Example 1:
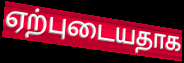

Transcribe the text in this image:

ஏற்புடையதாக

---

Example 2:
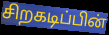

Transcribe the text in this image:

சிறகடிப்பின்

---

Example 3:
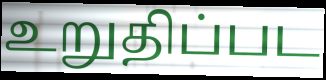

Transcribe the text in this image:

உறுதிப்பட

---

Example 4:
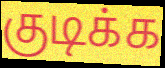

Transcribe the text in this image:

குடிக்க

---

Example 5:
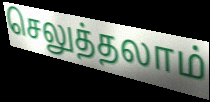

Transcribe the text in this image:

செலுத்தலாம்